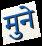
मुने